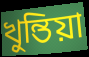
খুন্তিয়া